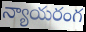
న్యాయరంగ